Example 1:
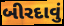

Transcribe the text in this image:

બીરદાવું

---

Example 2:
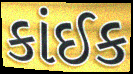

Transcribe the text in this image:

કાંઈક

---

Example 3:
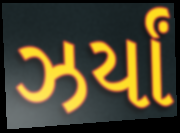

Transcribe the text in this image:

ઝર્યાં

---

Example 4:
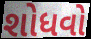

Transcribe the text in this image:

શોધવો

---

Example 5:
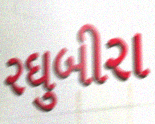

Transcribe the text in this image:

રઘુબીરા